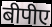
बीपीए